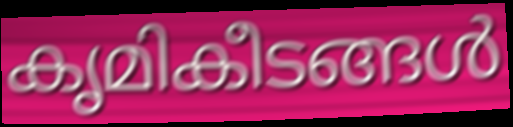
കൃമികീടങ്ങൾ